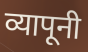
व्यापूनी